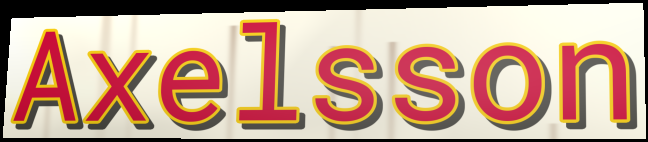
Axelsson